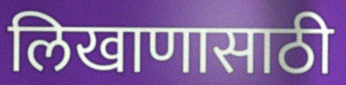
लिखाणासाठी